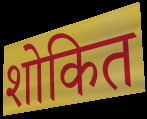
शोकित